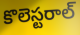
కొలెస్టరాల్